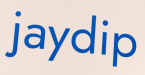
jaydip